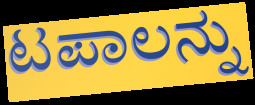
ಟಪಾಲನ್ನು